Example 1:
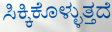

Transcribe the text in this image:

ಸಿಕ್ಕಿಕೊಳ್ಳುತ್ತದೆ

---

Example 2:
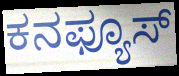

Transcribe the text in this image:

ಕನಫ್ಯೂಸ್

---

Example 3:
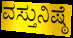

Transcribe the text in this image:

ವಸ್ತುನಿಷ್ಠೆ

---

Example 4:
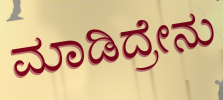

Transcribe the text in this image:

ಮಾಡಿದ್ರೇನು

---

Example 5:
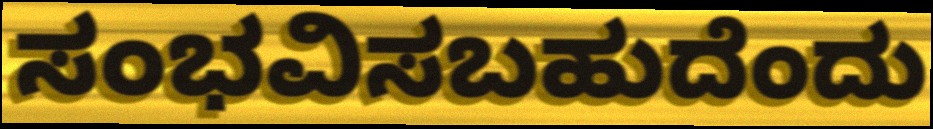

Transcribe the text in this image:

ಸಂಭವಿಸಬಹುದೆಂದು